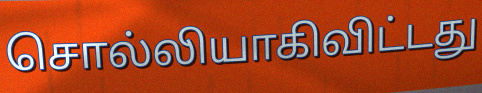
சொல்லியாகிவிட்டது